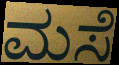
ಮಸೆ